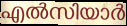
എൽസിയാർ